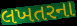
લખતરના